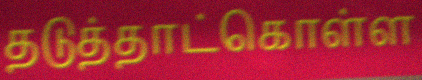
தடுத்தாட்கொள்ள